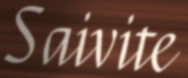
Saivite